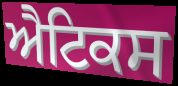
ਐਟਿਕਸ